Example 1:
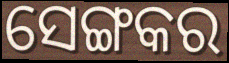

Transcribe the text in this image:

ସେଙ୍ଗକର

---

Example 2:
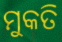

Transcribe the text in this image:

ମୁକତି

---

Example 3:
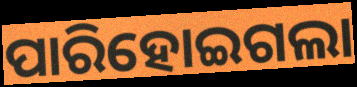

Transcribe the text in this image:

ପାରିହୋଇଗଲା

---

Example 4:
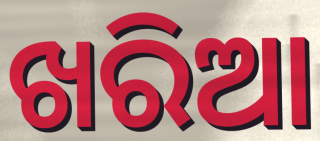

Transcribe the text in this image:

ଖରିଆ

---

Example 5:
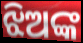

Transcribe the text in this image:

ଝିଅଙ୍କ